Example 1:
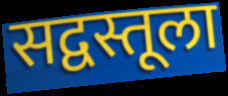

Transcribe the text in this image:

सद्वस्तूला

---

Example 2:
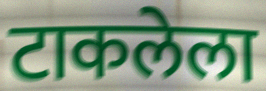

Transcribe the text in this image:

टाकलेला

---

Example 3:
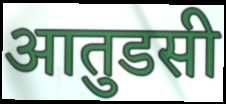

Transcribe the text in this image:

आतुडसी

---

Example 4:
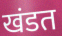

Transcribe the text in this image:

खंडत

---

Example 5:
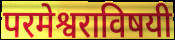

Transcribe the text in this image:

परमेश्वराविषयी